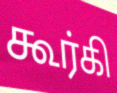
கூர்கி